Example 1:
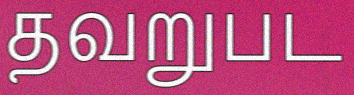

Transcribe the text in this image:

தவறுபட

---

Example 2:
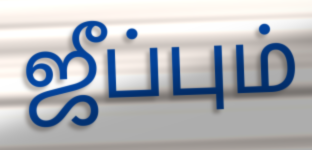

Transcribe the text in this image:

ஜீப்பும்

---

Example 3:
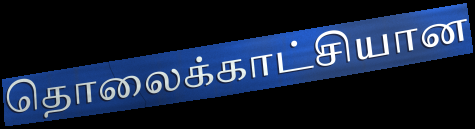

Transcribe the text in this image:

தொலைக்காட்சியான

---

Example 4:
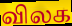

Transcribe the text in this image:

விலக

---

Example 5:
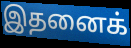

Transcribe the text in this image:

இதனைக்